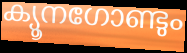
ക്യൂനഗോണ്ടും